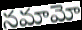
నమామో